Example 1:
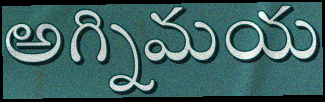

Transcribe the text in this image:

అగ్నిమయ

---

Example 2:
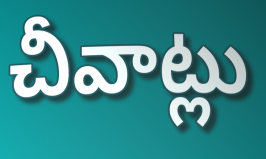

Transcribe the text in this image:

చీవాట్లు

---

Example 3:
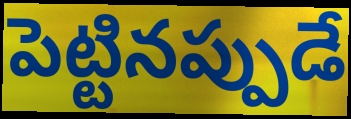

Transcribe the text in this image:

పెట్టినప్పుడే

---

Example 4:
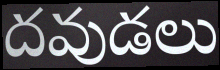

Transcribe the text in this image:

దవుడలు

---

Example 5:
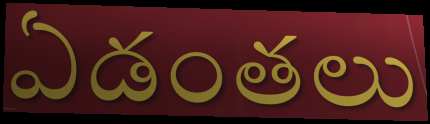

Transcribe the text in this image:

ఏడంతలు